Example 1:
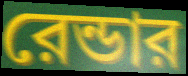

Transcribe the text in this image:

রেন্ডার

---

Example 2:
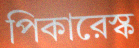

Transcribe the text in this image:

পিকারেস্ক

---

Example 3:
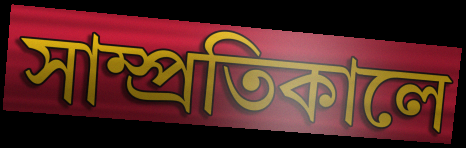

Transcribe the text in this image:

সাম্প্রতিকালে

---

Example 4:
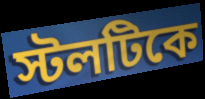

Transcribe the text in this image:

স্টলটিকে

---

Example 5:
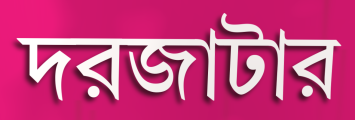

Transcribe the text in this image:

দরজাটার